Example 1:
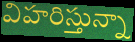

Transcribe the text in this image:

విహరిస్తున్నా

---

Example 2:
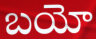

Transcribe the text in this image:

బయో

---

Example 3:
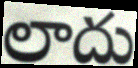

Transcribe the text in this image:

లాదు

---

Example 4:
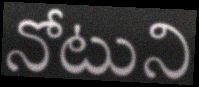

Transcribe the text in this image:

నోటుని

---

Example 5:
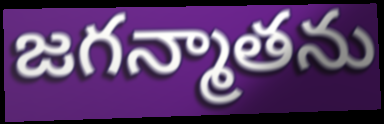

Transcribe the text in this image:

జగన్మాతను